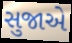
સુજાએ